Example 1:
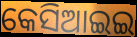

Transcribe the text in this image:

କେସିଆଇଇ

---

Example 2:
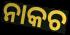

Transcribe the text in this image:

ନାକଚ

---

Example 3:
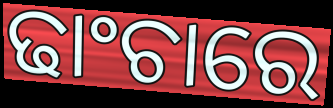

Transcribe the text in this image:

ଢାଂଚାରେ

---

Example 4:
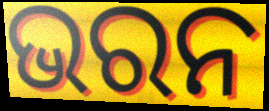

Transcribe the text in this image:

ଭରନ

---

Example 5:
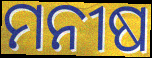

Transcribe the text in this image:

ମନୀଷ